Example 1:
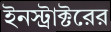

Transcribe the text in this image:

ইনস্ট্রাক্টরের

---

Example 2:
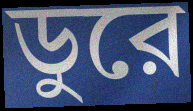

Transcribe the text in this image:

ডুরে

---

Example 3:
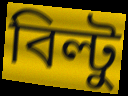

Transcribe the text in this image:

বিল্টু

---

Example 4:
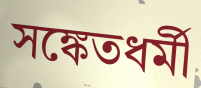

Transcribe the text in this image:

সঙ্কেতধর্মী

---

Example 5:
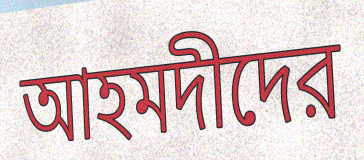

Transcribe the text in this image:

আহমদীদের